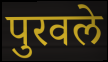
पुरवले